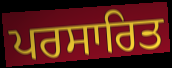
ਪਰਸਾਰਿਤ